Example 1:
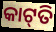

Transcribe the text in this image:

କାଟ୍‍ତି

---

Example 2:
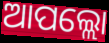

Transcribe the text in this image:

ଆପଲ୍ଲୋ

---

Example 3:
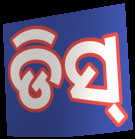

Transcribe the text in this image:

ଡିସ୍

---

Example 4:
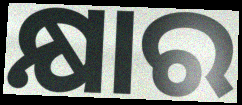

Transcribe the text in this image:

କ୍ଷାର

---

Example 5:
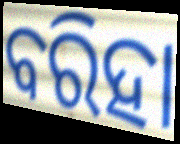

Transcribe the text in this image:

ବରିହା